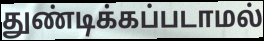
துண்டிக்கப்படாமல்